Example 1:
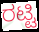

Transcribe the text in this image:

ರಟ್ಟಿ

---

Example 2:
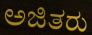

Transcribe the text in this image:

ಅಜಿತರು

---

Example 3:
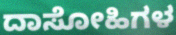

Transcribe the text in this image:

ದಾಸೋಹಿಗಳ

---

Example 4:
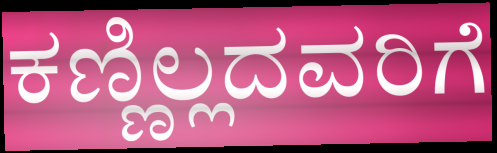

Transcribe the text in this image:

ಕಣ್ಣಿಲ್ಲದವರಿಗೆ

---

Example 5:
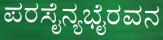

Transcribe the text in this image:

ಪರಸೈನ್ಯಭೈರವನ